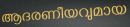
ആദരണീയവുമായ